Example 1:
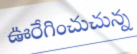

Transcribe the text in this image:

ఊరేగించుచున్న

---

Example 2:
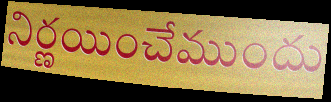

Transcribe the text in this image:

నిర్ణయించేముందు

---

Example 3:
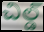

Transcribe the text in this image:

చిల్డ్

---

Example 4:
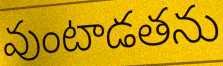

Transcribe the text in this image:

వుంటాడతను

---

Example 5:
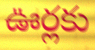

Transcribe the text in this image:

ఊర్లకు